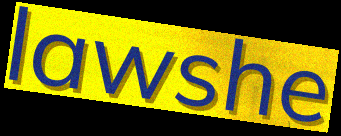
lawshe